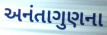
અનંતાગુણના